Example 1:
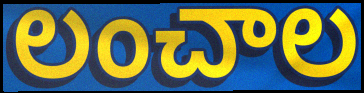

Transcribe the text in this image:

లంచాల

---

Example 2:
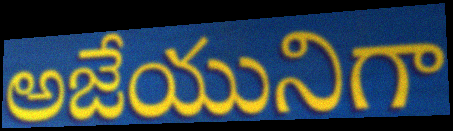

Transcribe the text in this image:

అజేయునిగా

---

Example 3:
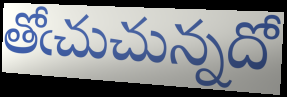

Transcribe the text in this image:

తోఁచుచున్నదో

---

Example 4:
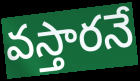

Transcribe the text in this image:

వస్తారనే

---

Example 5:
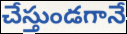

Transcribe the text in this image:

చేస్తుండగానే